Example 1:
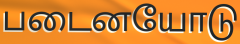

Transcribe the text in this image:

படைனயோடு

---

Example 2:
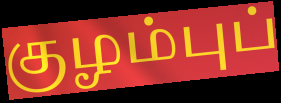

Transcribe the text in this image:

குழம்புப்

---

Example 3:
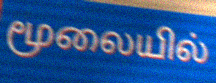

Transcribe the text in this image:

மூலையில்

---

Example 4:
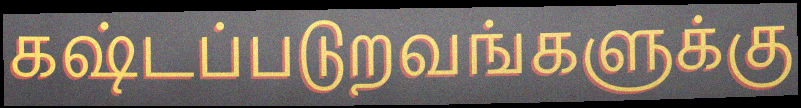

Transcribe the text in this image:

கஷ்டப்படுறவங்களுக்கு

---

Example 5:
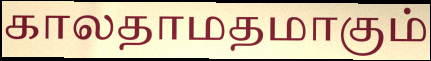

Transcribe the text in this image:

காலதாமதமாகும்